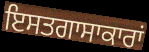
ਇਸਤਗਾਸਾਕਾਰਾਂ